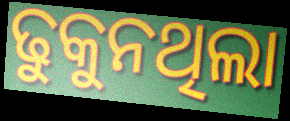
ଢୁକୁନଥିଲା